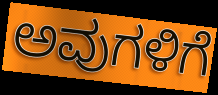
ಅವುಗಳಿಗೆ